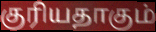
குரியதாகும்